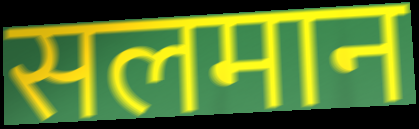
सलमान